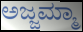
ಅಜ್ಜಮ್ಮಾ